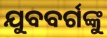
ଯୁବବର୍ଗଙ୍କୁ